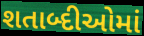
શતાબ્દીઓમાં